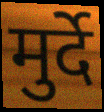
मुर्दे